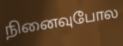
நினைவுபோல